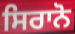
ਸਿਰਾਨੋ